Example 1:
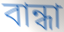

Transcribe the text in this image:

বান্ধা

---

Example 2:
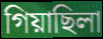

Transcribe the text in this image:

গিয়াছিলা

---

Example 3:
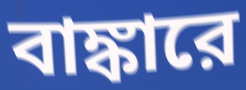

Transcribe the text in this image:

বাঙ্কারে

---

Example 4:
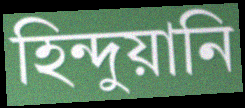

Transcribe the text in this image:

হিন্দুয়ানি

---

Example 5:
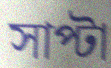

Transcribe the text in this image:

সাপ্টা